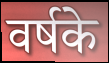
वर्षके